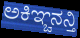
ಅಕಿಞ್ಚನನ್ತಿ